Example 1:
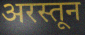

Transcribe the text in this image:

अरस्तून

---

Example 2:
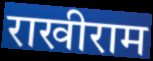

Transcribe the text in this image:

राखीराम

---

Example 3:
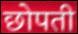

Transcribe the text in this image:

छोपती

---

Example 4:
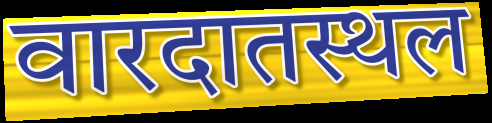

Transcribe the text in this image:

वारदातस्थल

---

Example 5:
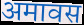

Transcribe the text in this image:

अमावस